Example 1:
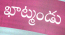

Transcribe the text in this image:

ఖాట్మండు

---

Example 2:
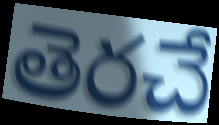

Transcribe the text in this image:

తెరచే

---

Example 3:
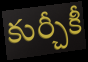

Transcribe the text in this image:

కుర్చీకీ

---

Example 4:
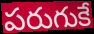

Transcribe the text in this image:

పరుగుకే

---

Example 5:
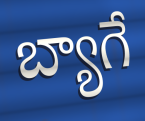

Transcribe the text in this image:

బ్యాగే